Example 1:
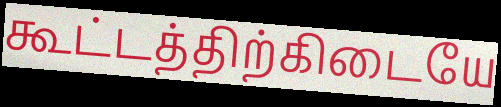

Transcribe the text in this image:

கூட்டத்திற்கிடையே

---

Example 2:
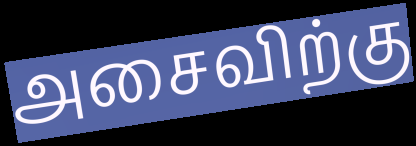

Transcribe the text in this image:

அசைவிற்கு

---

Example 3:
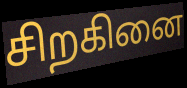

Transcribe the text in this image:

சிறகினை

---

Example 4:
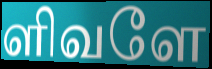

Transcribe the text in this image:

ளிவளே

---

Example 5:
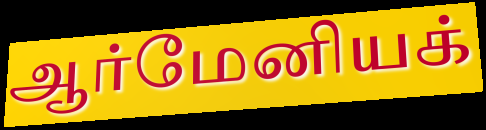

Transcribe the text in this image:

ஆர்மேனியக்